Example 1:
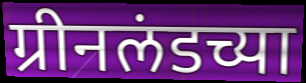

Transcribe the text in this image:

ग्रीनलंडच्या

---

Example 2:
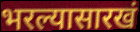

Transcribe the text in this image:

भरल्यासारखं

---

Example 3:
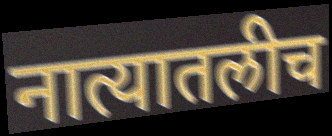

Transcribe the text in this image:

नात्यातलीच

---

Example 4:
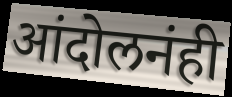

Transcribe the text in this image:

आंदोलनंही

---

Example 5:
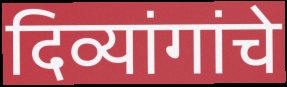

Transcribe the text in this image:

दिव्यांगांचे